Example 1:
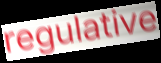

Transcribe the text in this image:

regulative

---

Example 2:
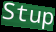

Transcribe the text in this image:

Stup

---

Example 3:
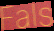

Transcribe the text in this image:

Fals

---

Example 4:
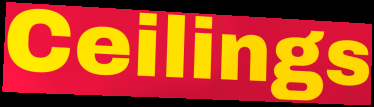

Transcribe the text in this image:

Ceilings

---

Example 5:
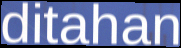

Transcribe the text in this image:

ditahan